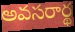
అవసరార్థ